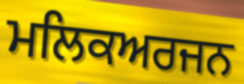
ਮਲਿਕਅਰਜਨ